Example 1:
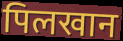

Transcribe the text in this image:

पिलखान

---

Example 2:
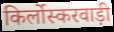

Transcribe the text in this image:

किर्लोस्करवाड़ी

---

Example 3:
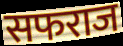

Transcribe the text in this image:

सफराज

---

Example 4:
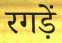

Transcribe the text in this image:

रगड़ें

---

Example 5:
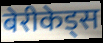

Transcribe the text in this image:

बेरीकेड्स